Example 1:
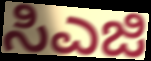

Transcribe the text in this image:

ಸಿಎಜಿ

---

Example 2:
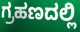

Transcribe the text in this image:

ಗ್ರಹಣದಲ್ಲಿ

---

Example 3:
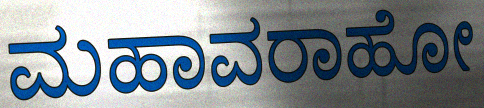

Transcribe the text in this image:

ಮಹಾವರಾಹೋ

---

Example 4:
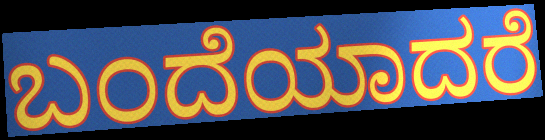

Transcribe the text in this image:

ಬಂದೆಯಾದರೆ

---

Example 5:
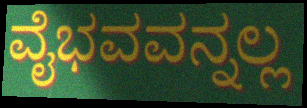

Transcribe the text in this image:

ವೈಭವವನ್ನಲ್ಲ